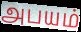
அபயம்